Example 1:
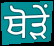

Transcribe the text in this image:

ਥੋੜੇਂ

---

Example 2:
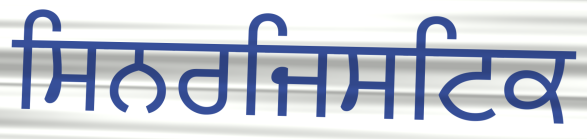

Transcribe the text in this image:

ਸਿਨਰਜਿਸਟਿਕ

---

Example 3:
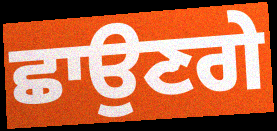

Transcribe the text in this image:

ਛਾਉਣਗੇ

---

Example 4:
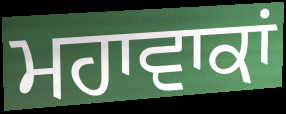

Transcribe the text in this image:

ਮਹਾਵਾਕਾਂ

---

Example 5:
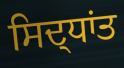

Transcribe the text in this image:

ਸਿਦ੍ਧਾਂਤ